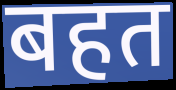
बहत